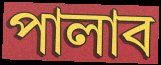
পালাব